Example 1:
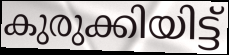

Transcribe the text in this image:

കുരുക്കിയിട്ട്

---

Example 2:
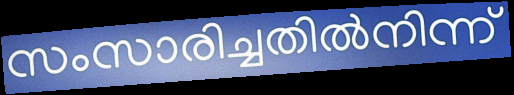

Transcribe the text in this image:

സംസാരിച്ചതിൽനിന്ന്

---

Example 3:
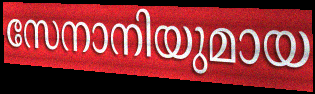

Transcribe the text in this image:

സേനാനിയുമായ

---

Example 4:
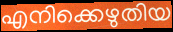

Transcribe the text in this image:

എനിക്കെഴുതിയ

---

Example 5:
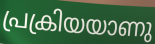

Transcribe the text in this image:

പ്രക്രിയയാണു